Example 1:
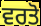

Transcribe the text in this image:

ਵਰਤੋ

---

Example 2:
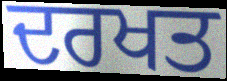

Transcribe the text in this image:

ਦਰਖਤ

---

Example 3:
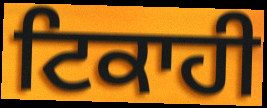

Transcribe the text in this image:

ਟਿਕਾਹੀ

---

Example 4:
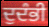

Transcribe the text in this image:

ਦੁਦੰਭੀ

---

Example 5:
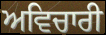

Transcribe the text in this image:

ਅਵਿਚਾਰੀ